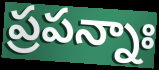
ప్రపన్నాః